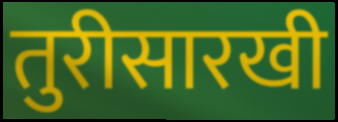
तुरीसारखी